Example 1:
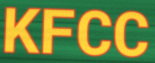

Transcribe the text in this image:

KFCC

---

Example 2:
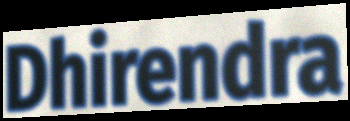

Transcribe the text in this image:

Dhirendra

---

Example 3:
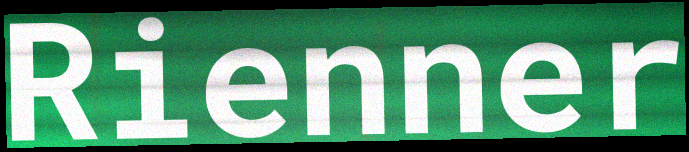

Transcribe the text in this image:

Rienner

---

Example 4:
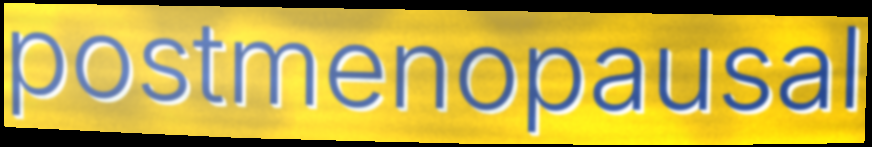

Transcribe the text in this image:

postmenopausal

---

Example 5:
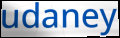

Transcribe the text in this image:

udaney